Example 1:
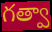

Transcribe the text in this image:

గత్వా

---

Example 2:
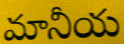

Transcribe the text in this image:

మానీయ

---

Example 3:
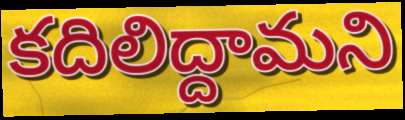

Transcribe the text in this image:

కదిలిద్దామని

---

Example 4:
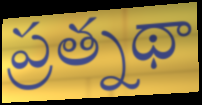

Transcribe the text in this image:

ప్రత్నథా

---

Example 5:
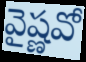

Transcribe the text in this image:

వైష్ణవో